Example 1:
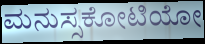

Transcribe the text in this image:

ಮನುಸ್ಸಕೋಟಿಯೋ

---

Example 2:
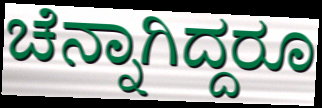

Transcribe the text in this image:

ಚೆನ್ನಾಗಿದ್ದರೂ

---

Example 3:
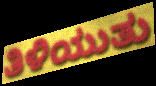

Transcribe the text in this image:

ತಿಳಿಯುತು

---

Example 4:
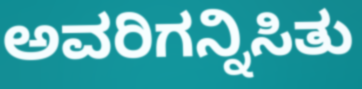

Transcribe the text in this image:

ಅವರಿಗನ್ನಿಸಿತು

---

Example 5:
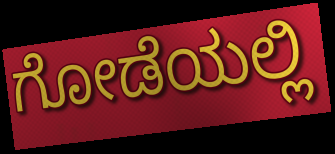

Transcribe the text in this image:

ಗೋಡೆಯಲ್ಲಿ